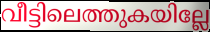
വീട്ടിലെത്തുകയില്ലേ